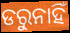
ଡରୁନାହିଁ